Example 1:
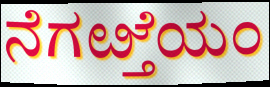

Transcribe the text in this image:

ನೆಗೞ್ತೆಯಂ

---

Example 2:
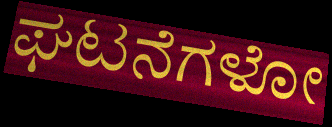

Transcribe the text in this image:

ಘಟನೆಗಳೋ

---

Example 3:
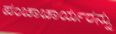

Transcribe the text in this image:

ಪಂಚಾಚಾರ್ಯರನ್ನು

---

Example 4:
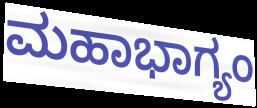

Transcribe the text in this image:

ಮಹಾಭಾಗ್ಯಂ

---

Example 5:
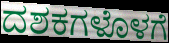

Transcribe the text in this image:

ದಶಕಗಳೊಳಗೆ